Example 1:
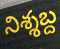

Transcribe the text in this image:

నిశ్శబ్ద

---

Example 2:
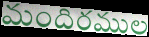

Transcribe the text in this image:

మందిరముల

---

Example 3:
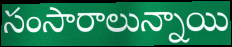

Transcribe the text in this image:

సంసారాలున్నాయి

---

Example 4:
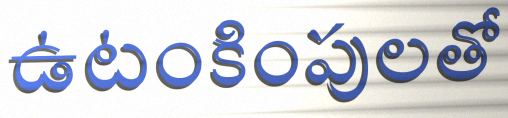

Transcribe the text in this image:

ఉటంకింపులతో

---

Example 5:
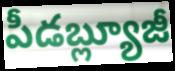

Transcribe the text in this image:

పీడబ్ల్యూజీ